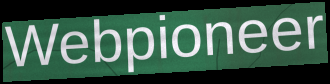
Webpioneer